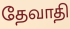
தேவாதி